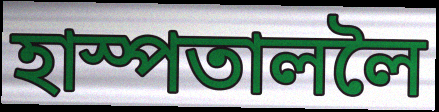
হাস্পতাললৈ